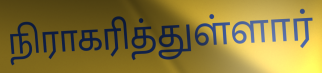
நிராகரித்துள்ளார்